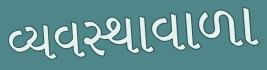
વ્યવસ્થાવાળા